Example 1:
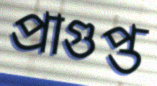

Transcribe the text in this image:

প্রাগুপ্ত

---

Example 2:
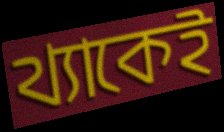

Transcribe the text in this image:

থ্যাকেই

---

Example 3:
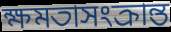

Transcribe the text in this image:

ক্ষমতাসংক্রান্ত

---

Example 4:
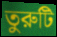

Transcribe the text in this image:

তুরুটি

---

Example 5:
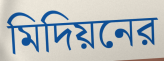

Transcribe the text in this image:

মিদিয়নের